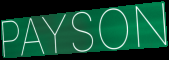
PAYSON